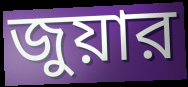
জুয়ার